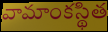
వామాంకస్థిత